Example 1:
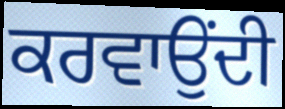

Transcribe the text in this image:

ਕਰਵਾਉਂਦੀ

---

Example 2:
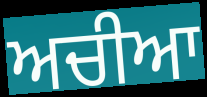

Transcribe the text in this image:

ਅਚੀਆ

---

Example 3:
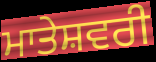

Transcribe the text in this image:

ਮਾਤੇਸ਼ਵਰੀ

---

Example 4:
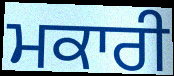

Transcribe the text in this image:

ਮਕਾਰੀ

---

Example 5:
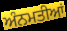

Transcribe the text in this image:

ਅੰਨਮਤੀਆਂ